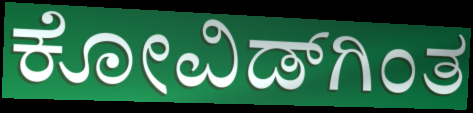
ಕೋವಿಡ್‌ಗಿಂತ